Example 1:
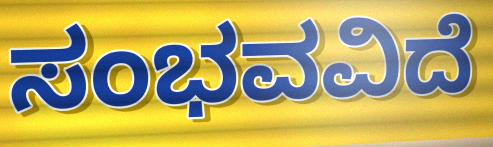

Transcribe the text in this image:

ಸಂಭವವಿದೆ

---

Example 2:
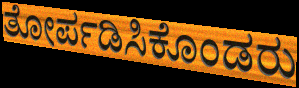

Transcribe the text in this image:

ತೋರ್ಪಡಿಸಿಕೊಂಡರು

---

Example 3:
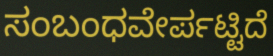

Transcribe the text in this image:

ಸಂಬಂಧವೇರ್ಪಟ್ಟಿದೆ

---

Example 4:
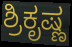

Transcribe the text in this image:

ಶ್ರಿಕೃಷ್ಣ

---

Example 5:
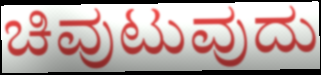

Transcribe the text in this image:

ಚಿವುಟುವುದು